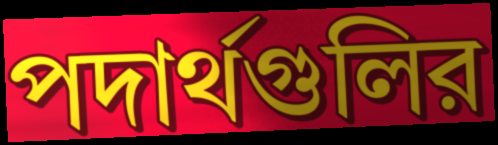
পদার্থগুলির